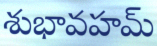
శుభావహమ్